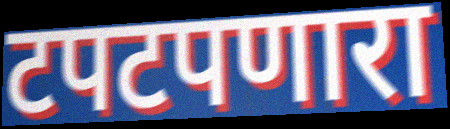
टपटपणारा